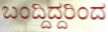
ಬಂದ್ದಿದ್ದರಿಂದ